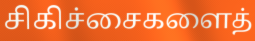
சிகிச்சைகளைத்